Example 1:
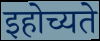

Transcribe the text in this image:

इहोच्यते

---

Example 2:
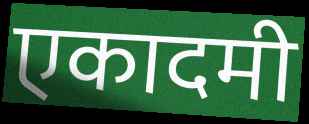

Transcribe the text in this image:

एकादमी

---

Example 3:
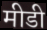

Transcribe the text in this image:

मीडी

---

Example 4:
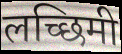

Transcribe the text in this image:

लच्छिमी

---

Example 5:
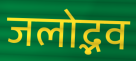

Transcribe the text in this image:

जलोद्भव